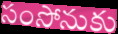
సంసోనుకు